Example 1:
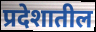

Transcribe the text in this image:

प्रदेशातील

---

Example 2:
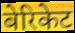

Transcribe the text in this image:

बेरिकेट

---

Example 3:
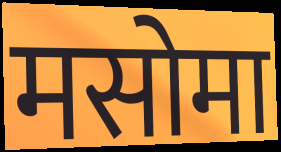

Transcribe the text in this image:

मसोमा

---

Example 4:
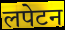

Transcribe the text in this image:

लपेटन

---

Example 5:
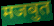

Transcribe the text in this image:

मजबुत